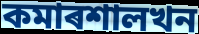
কমাৰশালখন